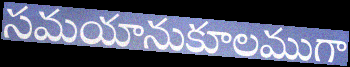
సమయానుకూలముగా